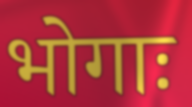
भोगाः